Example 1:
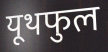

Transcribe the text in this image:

यूथफुल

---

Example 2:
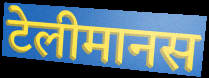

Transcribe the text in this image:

टेलीमानस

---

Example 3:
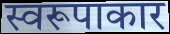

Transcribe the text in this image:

स्वरूपाकार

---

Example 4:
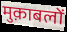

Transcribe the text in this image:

मुक़ाबलों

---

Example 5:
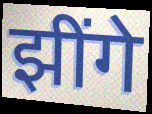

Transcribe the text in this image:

झींगे